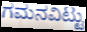
ಗಮನವಿಟ್ಟು